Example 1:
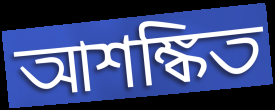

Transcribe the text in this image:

আশঙ্কিত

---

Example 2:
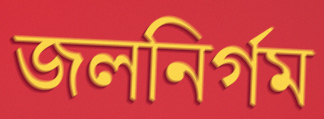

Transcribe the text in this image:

জলনির্গম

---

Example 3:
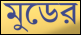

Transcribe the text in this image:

মুডের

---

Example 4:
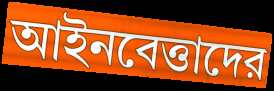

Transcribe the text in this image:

আইনবেত্তাদের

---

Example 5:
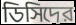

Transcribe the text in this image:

ডিসিদের